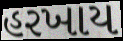
હરખાય